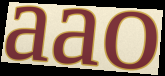
aao